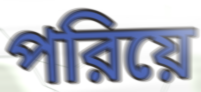
পরিয়ে